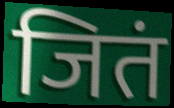
जितं